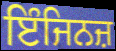
ਇੰਜਿਨਜ਼